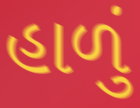
હાળું